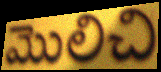
మొలిచి